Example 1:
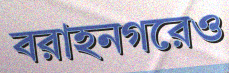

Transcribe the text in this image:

বরাহনগরেও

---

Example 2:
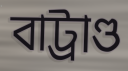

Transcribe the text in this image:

বাট্রাণ্ড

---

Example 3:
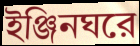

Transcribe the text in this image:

ইঞ্জিনঘরে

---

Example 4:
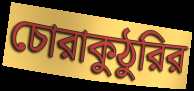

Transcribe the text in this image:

চোরাকুঠুরির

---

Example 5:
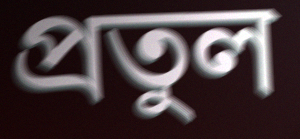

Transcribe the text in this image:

প্রতুল